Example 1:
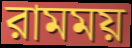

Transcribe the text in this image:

রামময়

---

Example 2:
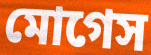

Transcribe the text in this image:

মোগেস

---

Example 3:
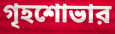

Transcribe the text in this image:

গৃহশোভার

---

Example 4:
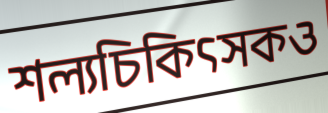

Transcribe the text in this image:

শল্যচিকিৎসকও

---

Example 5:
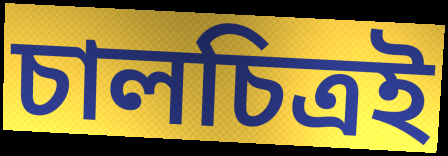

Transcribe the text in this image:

চালচিত্রই